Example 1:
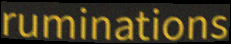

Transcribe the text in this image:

ruminations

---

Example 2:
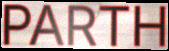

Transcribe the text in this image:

PARTH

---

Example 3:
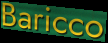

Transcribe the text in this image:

Baricco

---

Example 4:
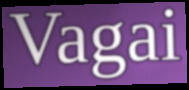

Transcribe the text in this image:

Vagai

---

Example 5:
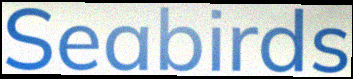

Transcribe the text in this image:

Seabirds